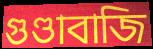
গুণ্ডাবাজি